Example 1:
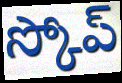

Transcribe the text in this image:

స్కోప్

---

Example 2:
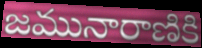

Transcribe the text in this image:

జమునారాణికి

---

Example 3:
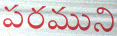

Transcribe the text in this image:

పరముని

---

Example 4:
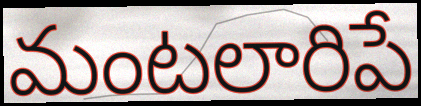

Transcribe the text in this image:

మంటలారిపే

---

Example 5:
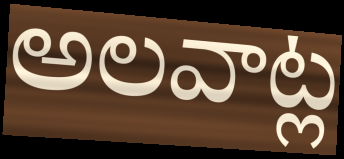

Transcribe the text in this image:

అలవాట్ల